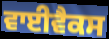
ਵਾਈਵੈਕਸ